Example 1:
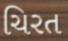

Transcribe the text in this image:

ચિરત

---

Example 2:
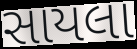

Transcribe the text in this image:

સાયલા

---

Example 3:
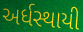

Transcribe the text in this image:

અર્ધસ્થાયી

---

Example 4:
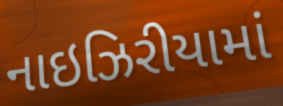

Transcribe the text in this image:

નાઇઝિરીયામાં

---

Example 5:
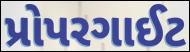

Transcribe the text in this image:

પ્રોપરગાઈટ